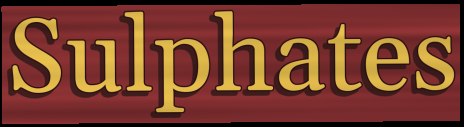
Sulphates